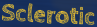
Sclerotic